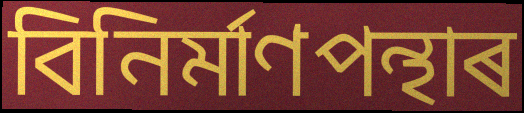
বিনিৰ্মাণপন্থাৰ